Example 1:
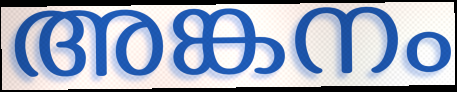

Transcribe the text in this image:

അങ്കനം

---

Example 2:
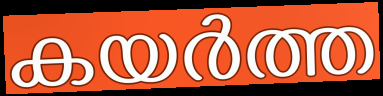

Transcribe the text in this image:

കയർത്ത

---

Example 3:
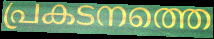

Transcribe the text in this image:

പ്രകടനത്തെ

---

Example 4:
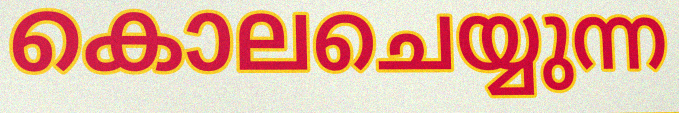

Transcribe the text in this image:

കൊലചെയ്യുന്ന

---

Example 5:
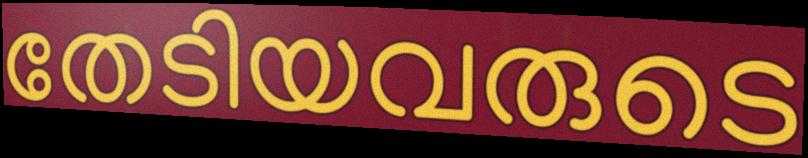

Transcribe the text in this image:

തേടിയവരുടെ